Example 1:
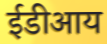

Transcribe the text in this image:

ईडीआय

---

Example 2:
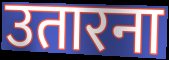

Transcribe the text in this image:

उतारना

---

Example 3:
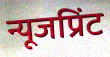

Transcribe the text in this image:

न्यूजप्रिंट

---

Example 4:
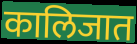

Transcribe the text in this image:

कालिजात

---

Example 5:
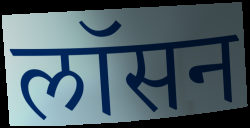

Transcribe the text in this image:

लॉसन